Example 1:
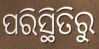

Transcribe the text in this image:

ପରିସ୍ଥିତିରୁ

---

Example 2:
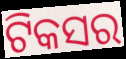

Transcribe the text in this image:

ଟିକସର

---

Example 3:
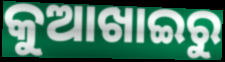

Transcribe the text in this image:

କୁଆଖାଇରୁ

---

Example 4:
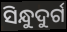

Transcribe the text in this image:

ସିନ୍ଧୁଦୁର୍ଗ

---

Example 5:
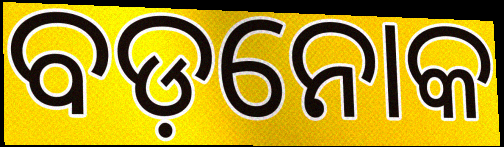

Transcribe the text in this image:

ବଡ଼ନୋକ